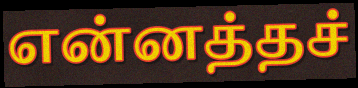
என்னத்தச்